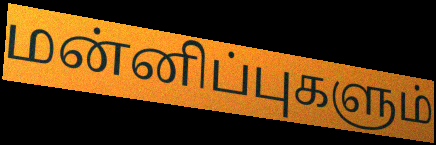
மன்னிப்புகளும்